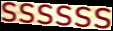
ssssss